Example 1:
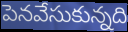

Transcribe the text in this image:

పెనవేసుకున్నది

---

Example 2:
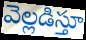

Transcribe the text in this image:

వెల్లడిస్తూ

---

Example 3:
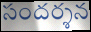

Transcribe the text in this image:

సందర్శన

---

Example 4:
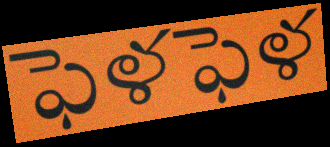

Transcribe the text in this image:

ఫెళఫెళ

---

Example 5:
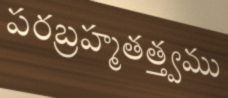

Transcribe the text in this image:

పరబ్రహ్మతత్త్వము